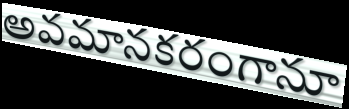
అవమానకరంగానూ